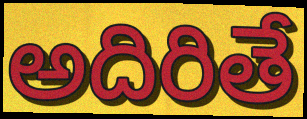
అదిరితే